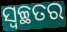
ସ୍ଵଚ୍ଛତର